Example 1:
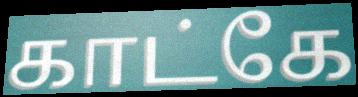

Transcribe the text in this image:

காட்கே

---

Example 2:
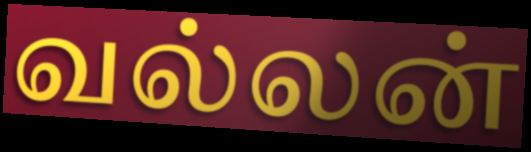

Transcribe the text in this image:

வல்லன்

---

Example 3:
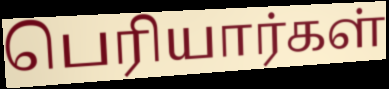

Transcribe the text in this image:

பெரியார்கள்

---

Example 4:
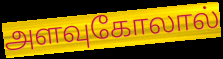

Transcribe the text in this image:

அளவுகோலால்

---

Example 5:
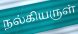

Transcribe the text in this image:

நல்கியருள்